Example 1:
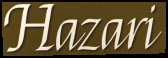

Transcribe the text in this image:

Hazari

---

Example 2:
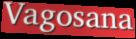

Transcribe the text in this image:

Vagosana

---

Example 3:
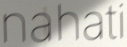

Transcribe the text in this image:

nahati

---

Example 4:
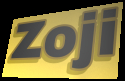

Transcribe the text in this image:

Zoji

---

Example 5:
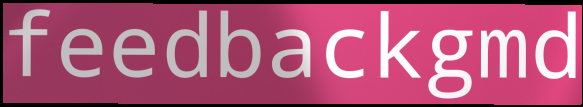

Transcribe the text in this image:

feedbackgmd